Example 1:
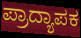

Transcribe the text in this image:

ಪ್ರಾದ್ಯಾಪಕ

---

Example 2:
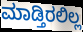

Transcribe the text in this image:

ಮಾಡ್ತಿರಲಿಲ್ಲ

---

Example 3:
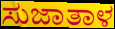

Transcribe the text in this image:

ಸುಜಾತಾಳ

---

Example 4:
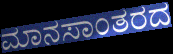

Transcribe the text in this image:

ಮಾನಸಾಂತರದ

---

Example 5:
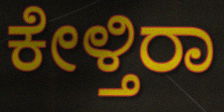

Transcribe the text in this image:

ಕೇಳ್ತಿರಾ